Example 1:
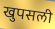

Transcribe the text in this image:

खुपसली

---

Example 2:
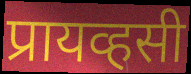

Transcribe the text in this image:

प्रायव्हसी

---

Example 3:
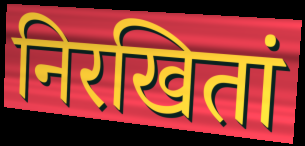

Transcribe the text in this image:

निरखितां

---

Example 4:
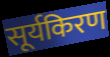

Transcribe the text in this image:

सूर्यकिरण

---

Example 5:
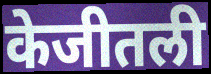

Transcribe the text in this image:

केजीतली